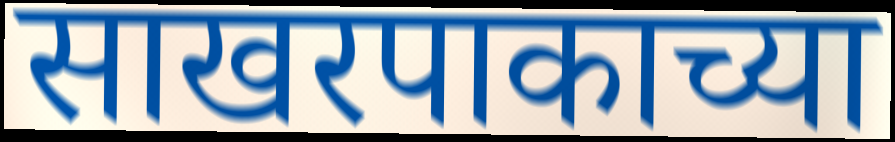
साखरपाकाच्या